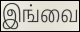
இங்வை